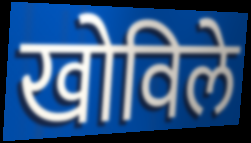
खोविले